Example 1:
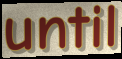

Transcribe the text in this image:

until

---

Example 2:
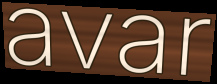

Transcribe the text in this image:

avar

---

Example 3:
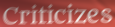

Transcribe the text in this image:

Criticizes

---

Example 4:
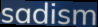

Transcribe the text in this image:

sadism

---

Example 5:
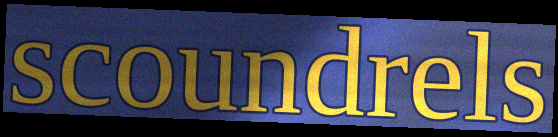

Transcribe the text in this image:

scoundrels